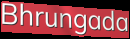
Bhrungada